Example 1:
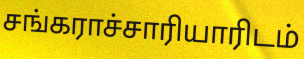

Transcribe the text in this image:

சங்கராச்சாரியாரிடம்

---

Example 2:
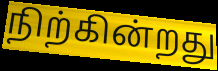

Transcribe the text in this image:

நிற்கின்றது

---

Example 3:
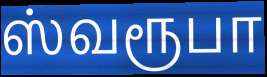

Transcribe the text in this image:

ஸ்வரூபா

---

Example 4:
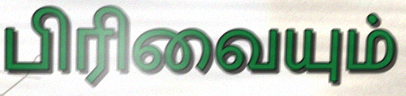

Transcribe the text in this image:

பிரிவையும்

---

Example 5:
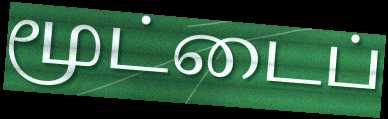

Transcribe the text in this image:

மூட்டைப்